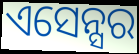
ଏସେନ୍ସର